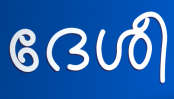
ദേശീ